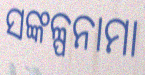
ସଙ୍କଳ୍ପନାମା